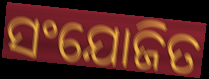
ସଂଯୋଜିତ